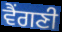
ਵੈਂਗਣੀ